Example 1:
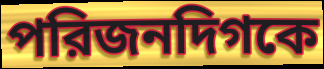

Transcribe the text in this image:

পরিজনদিগকে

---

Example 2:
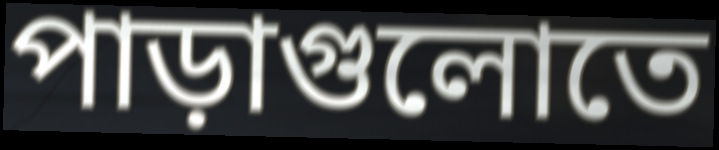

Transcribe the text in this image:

পাড়াগুলোতে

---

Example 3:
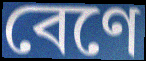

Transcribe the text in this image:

বেণে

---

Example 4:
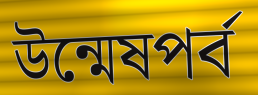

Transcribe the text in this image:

উন্মেষপর্ব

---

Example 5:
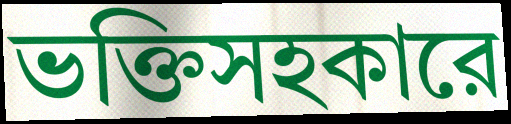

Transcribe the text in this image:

ভক্তিসহকারে